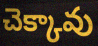
చెక్కావు